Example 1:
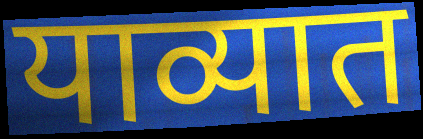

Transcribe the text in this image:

याव्यात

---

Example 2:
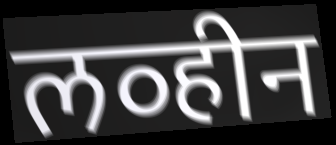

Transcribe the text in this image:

लव्हीन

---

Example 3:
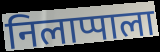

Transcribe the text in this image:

निलाप्पाला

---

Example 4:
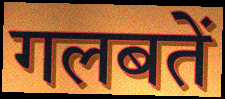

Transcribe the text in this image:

गलबतें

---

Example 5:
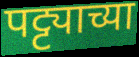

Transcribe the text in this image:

पट्ट्याच्या